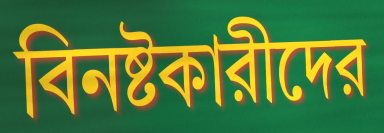
বিনষ্টকারীদের